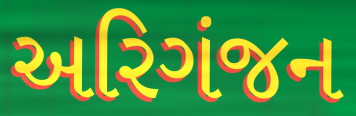
અરિગંજન